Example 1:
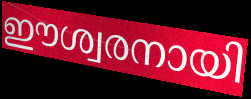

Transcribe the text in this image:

ഈശ്വരനായി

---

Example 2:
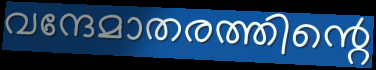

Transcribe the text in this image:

വന്ദേമാതരത്തിന്റെ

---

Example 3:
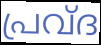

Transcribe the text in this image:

പ്രവ്ദ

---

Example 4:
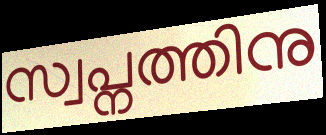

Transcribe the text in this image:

സ്വപ്നത്തിനു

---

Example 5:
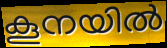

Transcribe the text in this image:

കൂനയിൽ